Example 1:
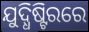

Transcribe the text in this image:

ଯୁଦ୍ଧିଷ୍ଟିରରେ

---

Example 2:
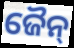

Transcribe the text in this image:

ଜୈନ୍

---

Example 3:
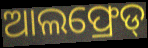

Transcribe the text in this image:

ଆଲଫ୍ରେଡ୍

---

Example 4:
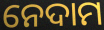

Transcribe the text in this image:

ନେଦାମ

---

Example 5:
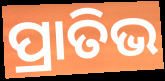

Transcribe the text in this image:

ପ୍ରାତିଭ